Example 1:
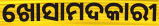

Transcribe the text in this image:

ଖୋସାମଦକାରୀ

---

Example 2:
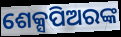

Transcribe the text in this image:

ଶେକ୍ସପିଅରଙ୍କ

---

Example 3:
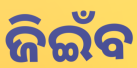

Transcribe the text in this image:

ଜିଇଁବ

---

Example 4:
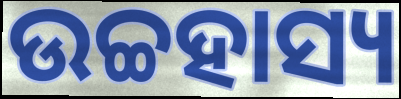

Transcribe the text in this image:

ଉଚ୍ଚହାସ୍ୟ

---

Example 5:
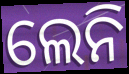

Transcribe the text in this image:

ଲେନି